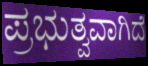
ಪ್ರಭುತ್ವವಾಗಿದೆ